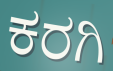
ಕರಗಿ